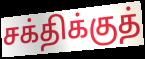
சக்திக்குத்